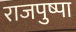
राजपुष्पा